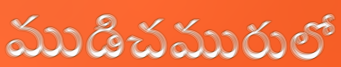
ముడిచమురులో